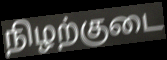
நிழற்குடை